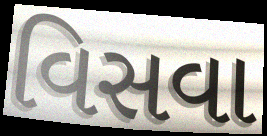
વિસવા